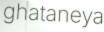
ghataneya